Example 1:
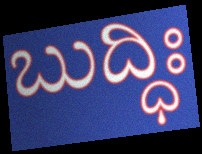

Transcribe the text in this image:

ಬುದ್ಧಿಃ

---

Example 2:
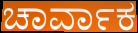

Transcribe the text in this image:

ಚಾರ್ವಾಕ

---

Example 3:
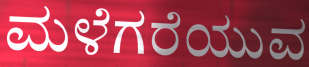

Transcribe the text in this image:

ಮಳೆಗರೆಯುವ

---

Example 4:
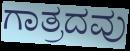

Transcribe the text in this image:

ಗಾತ್ರದವು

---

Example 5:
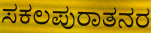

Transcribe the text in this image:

ಸಕಲಪುರಾತನರ